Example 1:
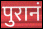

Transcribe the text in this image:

पुरानं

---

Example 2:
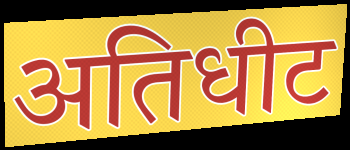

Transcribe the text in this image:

अतिधीट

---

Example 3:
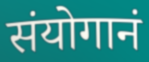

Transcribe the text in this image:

संयोगानं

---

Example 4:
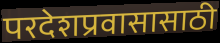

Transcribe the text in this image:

परदेशप्रवासासाठी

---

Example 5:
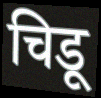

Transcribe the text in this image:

चिडू